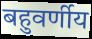
बहुवर्णीय